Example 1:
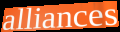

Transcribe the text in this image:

alliances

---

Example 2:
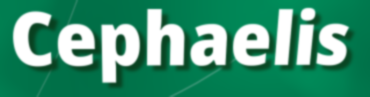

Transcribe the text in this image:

Cephaelis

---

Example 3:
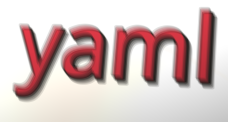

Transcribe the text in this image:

yaml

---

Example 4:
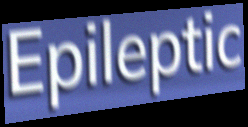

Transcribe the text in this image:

Epileptic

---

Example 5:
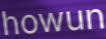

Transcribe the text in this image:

howun